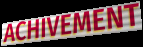
ACHIVEMENT